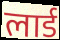
लार्ड